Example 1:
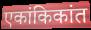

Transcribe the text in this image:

एकांकिकांत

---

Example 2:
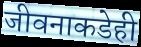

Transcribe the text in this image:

जीवनाकडेही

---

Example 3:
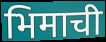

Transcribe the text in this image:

भिमाची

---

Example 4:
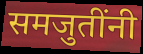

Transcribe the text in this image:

समजुतींनी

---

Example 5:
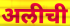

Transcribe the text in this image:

अलीची